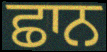
ਛਾਨ